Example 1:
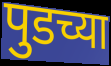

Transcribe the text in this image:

पुडच्या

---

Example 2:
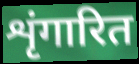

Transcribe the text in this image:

शृंगारित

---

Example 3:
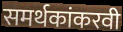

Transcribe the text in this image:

समर्थकांकरवी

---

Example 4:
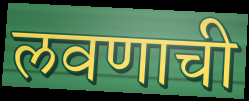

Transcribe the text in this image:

लवणाची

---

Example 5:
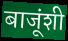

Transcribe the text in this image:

बाजूंशी